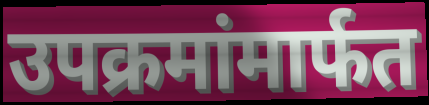
उपक्रमांमार्फत